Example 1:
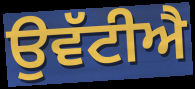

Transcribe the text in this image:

ਉਵੱਟੀਐ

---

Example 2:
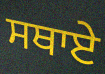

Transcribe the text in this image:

ਸਥਾਏ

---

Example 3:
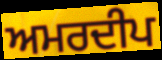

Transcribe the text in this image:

ਅਮਰਦੀਪ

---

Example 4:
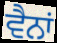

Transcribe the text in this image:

ਵੈਨਾਂ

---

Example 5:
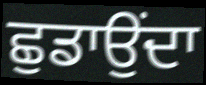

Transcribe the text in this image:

ਛੁਡਾਉਂਦਾ